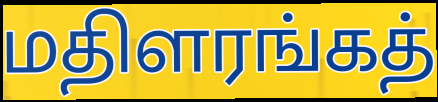
மதிளரங்கத்